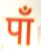
पाँ